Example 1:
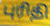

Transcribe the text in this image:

புரிதி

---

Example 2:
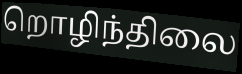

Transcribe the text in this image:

றொழிந்திலை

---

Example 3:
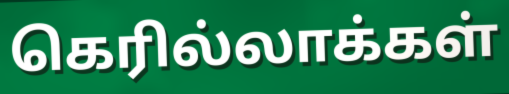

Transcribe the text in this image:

கெரில்லாக்கள்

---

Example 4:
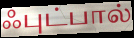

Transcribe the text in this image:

ஃபுட்பால்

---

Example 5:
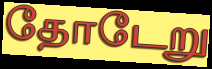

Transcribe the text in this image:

தோடேறு